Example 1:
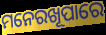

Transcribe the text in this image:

ମନେରଖୂପାରେ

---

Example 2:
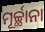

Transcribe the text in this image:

ମୂର୍ଚ୍ଛାନା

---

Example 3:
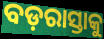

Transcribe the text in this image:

ବଡ଼ରାସ୍ତାକୁ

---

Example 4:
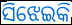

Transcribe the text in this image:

ସିଝେଇକି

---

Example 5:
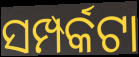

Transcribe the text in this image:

ସମ୍ପର୍କଟା